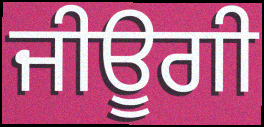
ਜੀਊਗੀ